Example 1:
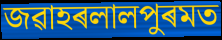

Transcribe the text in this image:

জৱাহৰলালপুৰমত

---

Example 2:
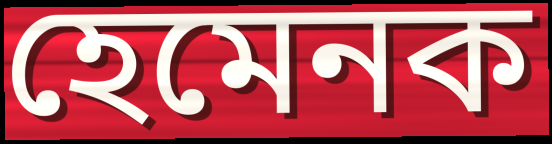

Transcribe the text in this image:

হেমেনক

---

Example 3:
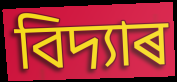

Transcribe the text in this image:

বিদ্যাৰ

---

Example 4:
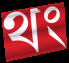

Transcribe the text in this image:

থং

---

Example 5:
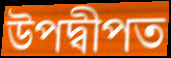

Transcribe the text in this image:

উপদ্বীপত